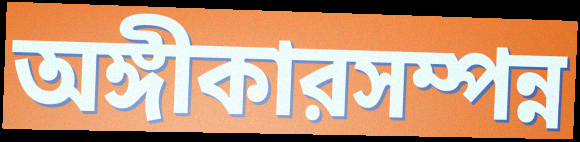
অঙ্গীকারসম্পন্ন